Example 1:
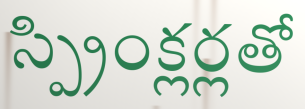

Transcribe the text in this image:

స్ప్రింక్లర్లతో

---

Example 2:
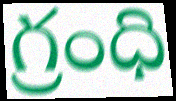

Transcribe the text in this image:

గ్రంధి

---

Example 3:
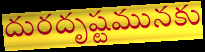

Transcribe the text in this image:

దురదృష్టమునకు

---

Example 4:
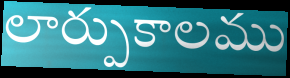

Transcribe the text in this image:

లార్పుకాలము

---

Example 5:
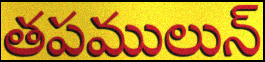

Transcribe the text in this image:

తపములున్